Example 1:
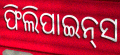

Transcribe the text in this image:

ଫିଲିପାଇନ୍‍ସ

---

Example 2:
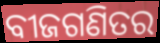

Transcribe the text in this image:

ବୀଜଗଣିତର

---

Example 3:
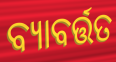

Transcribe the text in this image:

ବ୍ୟାବର୍ତ୍ତତ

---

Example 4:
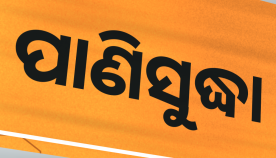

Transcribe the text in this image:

ପାଣିସୁଦ୍ଧା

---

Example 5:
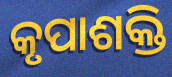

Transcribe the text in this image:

କୃପାଶକ୍ତି